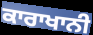
ਕਾਰਾਖਾਨੀ